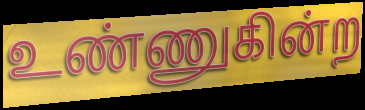
உண்ணுகின்ற